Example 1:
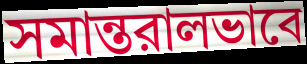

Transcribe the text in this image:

সমান্তরালভাবে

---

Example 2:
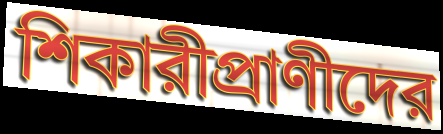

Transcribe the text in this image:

শিকারীপ্রাণীদের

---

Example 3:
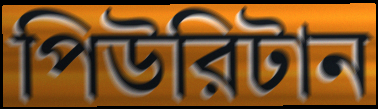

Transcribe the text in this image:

পিউরিটান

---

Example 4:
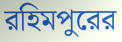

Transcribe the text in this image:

রহিমপুরের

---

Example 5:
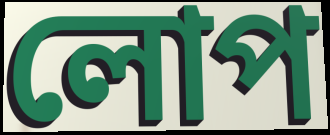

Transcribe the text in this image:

লোপ